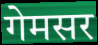
गेमसर